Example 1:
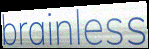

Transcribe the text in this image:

brainless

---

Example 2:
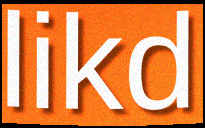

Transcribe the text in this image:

likd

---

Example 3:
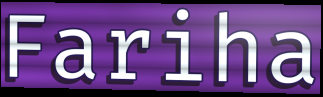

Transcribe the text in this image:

Fariha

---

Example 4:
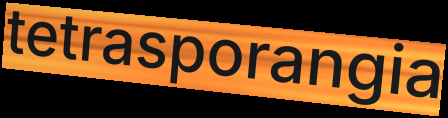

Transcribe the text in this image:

tetrasporangia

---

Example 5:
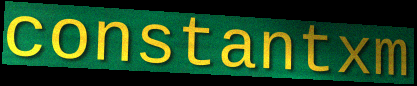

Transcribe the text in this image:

constantxm